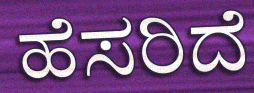
ಹೆಸರಿದೆ